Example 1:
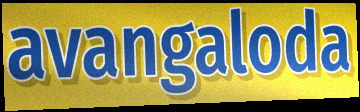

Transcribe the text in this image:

avangaloda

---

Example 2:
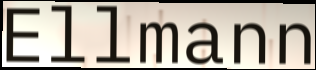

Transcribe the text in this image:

Ellmann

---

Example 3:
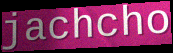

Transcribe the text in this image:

jachcho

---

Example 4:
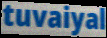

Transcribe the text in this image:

tuvaiyal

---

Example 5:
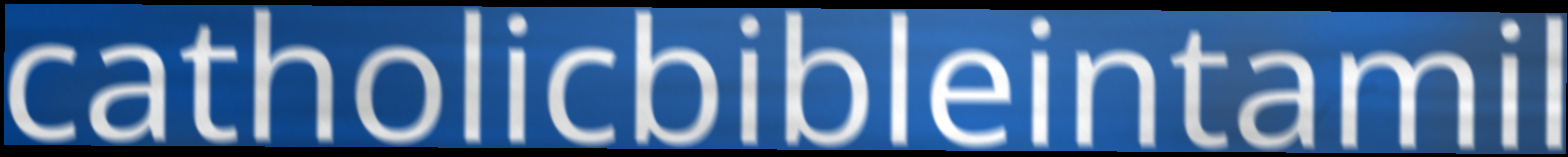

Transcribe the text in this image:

catholicbibleintamil